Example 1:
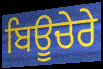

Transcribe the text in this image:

ਬਿਊਚੇਰੇ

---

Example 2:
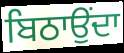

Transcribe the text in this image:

ਬਿਠਾਉਂਦਾ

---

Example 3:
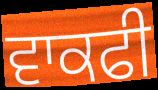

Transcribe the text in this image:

ਵਾਕਫੀ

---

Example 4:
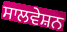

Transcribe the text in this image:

ਸਾਲਵੇਸ਼ਨ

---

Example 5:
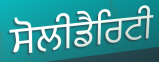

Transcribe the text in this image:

ਸੋਲੀਡੈਰਿਟੀ